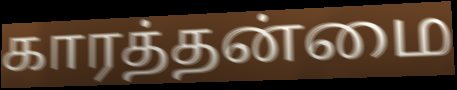
காரத்தன்மை